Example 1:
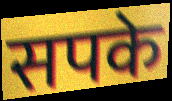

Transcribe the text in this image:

सपके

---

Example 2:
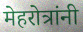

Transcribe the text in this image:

मेहरोत्रांनी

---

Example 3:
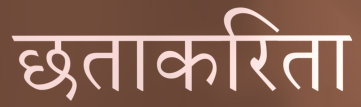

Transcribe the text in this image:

छताकरिता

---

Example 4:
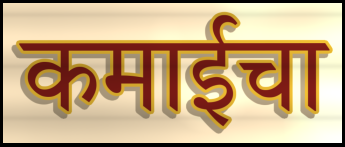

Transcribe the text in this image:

कमाईचा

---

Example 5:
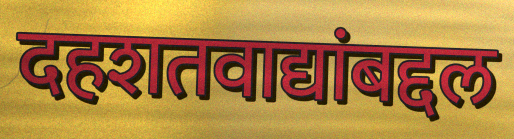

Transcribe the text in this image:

दहशतवाद्यांबद्दल